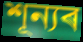
শূন্যৰ